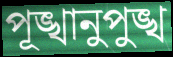
পূঙ্খানুপুঙ্খ